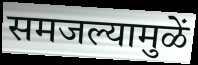
समजल्यामुळें